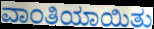
ವಾಂತಿಯಾಯಿತು